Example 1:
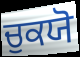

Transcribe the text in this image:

ਚੁਕਯੋ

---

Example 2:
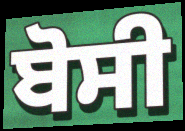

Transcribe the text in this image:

ਬੋਸੀ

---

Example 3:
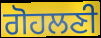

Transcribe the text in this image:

ਗੋਹਲਣੀ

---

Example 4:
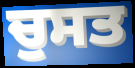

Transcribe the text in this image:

ਚੁਸਤ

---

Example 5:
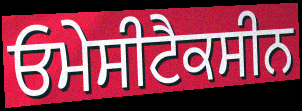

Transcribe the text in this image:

ਓਮੇਸੀਟੈਕਸੀਨ